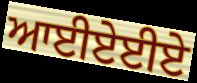
ਆਈਏਈਏ